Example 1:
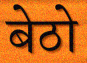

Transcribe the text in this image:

बेठो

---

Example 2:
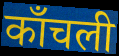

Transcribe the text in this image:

काँचली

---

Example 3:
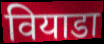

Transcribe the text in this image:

वियाडा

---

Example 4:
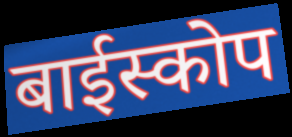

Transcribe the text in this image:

बाईस्कोप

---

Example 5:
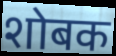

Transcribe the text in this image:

शोबक